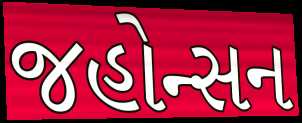
જહોન્સન